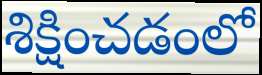
శిక్షించడంలో